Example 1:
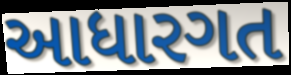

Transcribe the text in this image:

આધારગત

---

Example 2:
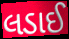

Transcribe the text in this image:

લડાઈ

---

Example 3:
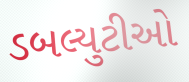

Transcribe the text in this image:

ડબલ્યુટીઓ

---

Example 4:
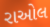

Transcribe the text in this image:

રાઓલ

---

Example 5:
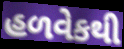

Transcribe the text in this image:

હળવેકથી